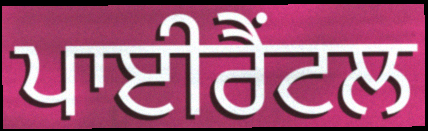
ਪਾਈਰੈਂਟਲ